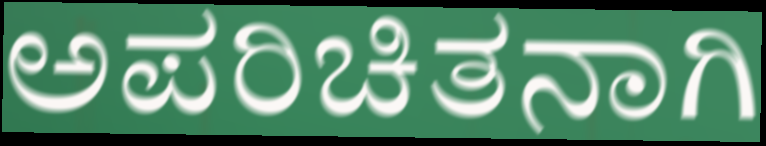
ಅಪರಿಚಿತನಾಗಿ